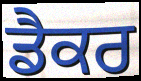
ਡੈਕਰ